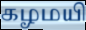
கழமயி